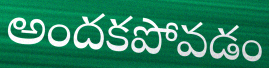
అందకపోవడం